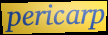
pericarp